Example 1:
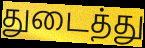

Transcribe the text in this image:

துடைத்து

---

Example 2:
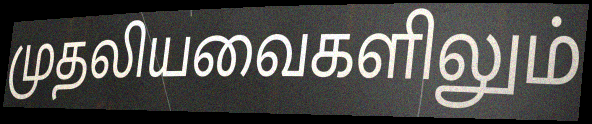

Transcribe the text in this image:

முதலியவைகளிலும்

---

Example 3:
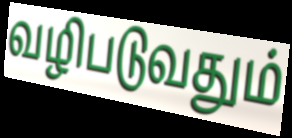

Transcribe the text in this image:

வழிபடுவதும்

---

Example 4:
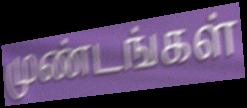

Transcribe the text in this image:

முண்டங்கள்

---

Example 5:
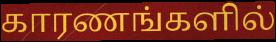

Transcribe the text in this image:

காரணங்களில்